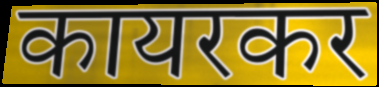
कायरकर